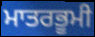
ਮਾਤਰਭੂਮੀ